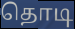
தொடி